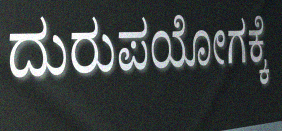
ದುರುಪಯೋಗಕ್ಕೆ